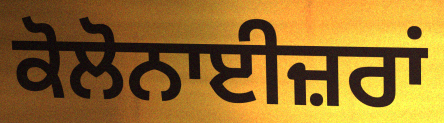
ਕੋਲੋਨਾਈਜ਼ਰਾਂ